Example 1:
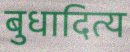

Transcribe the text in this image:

बुधादित्य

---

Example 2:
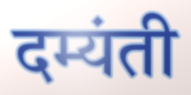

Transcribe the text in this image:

दम्यंती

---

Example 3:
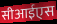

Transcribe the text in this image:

सीआईएस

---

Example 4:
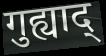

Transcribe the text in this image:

गुह्याद्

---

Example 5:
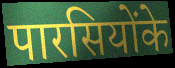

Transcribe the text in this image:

पारसियोंके